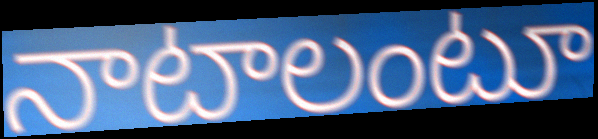
నాటాలంటూ